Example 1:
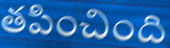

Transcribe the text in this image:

తపించింది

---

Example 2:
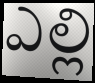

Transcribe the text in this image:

ఎల్లి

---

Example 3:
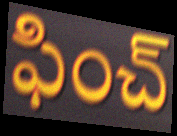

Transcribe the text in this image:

ఫించ్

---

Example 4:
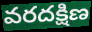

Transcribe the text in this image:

వరదక్షిణ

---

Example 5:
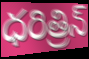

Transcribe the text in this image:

ధరిత్రిన్